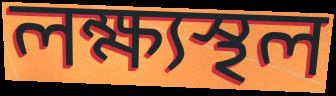
লক্ষ্যস্থল